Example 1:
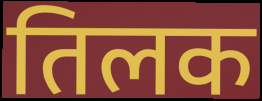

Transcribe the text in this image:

तिलक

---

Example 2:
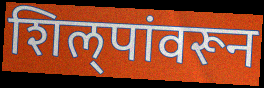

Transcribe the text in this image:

शिल्पांवरून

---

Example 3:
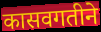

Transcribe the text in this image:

कासवगतीने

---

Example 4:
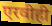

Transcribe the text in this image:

एरवीही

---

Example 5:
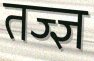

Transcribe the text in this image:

तज्‍ज्ञ